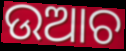
ଉଆଚ